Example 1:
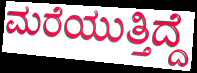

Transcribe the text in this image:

ಮರೆಯುತ್ತಿದ್ದೆ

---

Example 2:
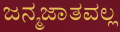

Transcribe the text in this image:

ಜನ್ಮಜಾತವಲ್ಲ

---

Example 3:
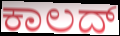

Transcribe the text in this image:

ಕಾಲದ್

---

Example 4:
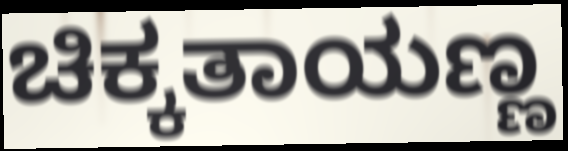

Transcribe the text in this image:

ಚಿಕ್ಕತಾಯಣ್ಣ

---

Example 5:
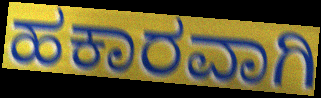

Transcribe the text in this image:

ಹಕಾರವಾಗಿ